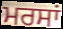
ਮਰਸਾਂ